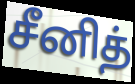
சீனித்